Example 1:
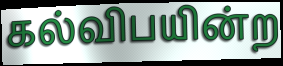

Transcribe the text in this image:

கல்விபயின்ற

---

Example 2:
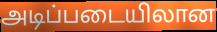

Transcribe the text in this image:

அடிப்படையிலான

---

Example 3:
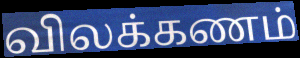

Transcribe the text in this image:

விலக்கணம்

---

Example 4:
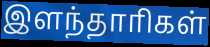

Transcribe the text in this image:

இளந்தாரிகள்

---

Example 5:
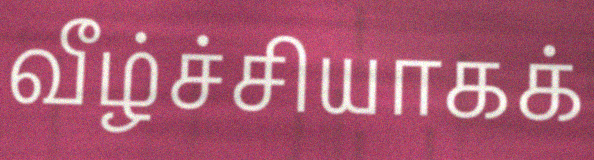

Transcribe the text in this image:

வீழ்ச்சியாகக்